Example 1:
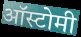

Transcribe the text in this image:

ऑस्टोमी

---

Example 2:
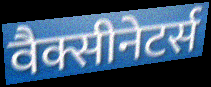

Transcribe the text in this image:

वैक्सीनेटर्स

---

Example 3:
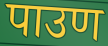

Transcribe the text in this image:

पाउण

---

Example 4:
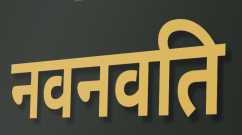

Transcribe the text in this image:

नवनवति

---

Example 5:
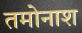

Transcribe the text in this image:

तमोनाश